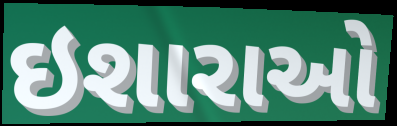
ઇશારાઓ